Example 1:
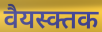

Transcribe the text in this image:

वैयस्क्तक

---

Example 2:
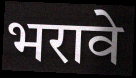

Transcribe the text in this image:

भरावे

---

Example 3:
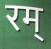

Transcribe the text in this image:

रम्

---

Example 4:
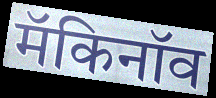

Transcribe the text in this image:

मॅकिनॉव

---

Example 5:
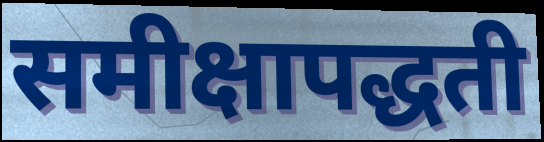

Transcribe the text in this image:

समीक्षापद्धती